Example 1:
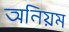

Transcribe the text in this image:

অনিয়ম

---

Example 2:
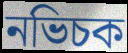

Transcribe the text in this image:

নভিচক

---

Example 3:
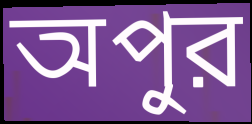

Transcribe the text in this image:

অপুর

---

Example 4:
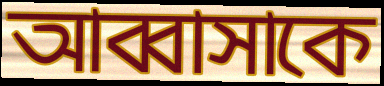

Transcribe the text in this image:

আব্বাসাকে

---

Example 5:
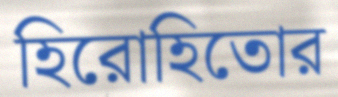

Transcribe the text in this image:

হিরোহিতোর